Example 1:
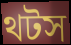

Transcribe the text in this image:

থটস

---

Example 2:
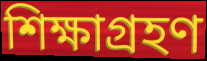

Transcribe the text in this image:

শিক্ষাগ্রহণ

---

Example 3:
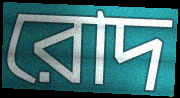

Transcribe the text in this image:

রোদ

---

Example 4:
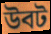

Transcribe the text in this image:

উবট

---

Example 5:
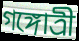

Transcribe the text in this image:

গঙ্গোত্রী